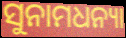
ସୁନାମଧନ୍ୟା